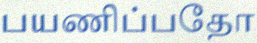
பயணிப்பதோ